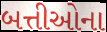
બત્તીઓના